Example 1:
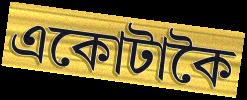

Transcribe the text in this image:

একোটাকৈ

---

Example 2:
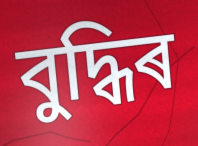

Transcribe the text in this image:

বুদ্ধিৰ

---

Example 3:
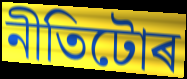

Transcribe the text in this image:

নীতিটোৰ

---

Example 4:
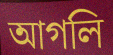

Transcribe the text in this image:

আগলি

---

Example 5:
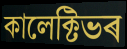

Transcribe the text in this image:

কালেক্টিভৰ